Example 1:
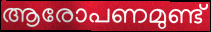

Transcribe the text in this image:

ആരോപണമുണ്ട്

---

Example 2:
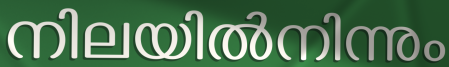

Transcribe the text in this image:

നിലയിൽനിന്നും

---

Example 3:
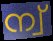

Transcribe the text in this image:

ന്വ്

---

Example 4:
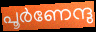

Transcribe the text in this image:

പൂർണേന്ദു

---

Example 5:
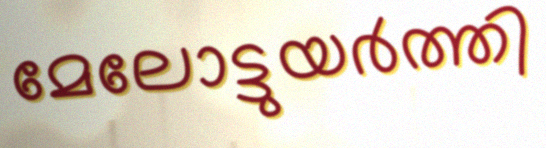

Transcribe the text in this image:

മേലോട്ടുയർത്തി